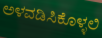
ಅಳವಡಿಸಿಕೊಳ್ಳಲಿ